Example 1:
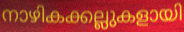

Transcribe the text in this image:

നാഴികക്കല്ലുകളായി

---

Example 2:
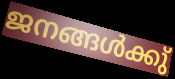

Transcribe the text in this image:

ജനങ്ങൾക്കു്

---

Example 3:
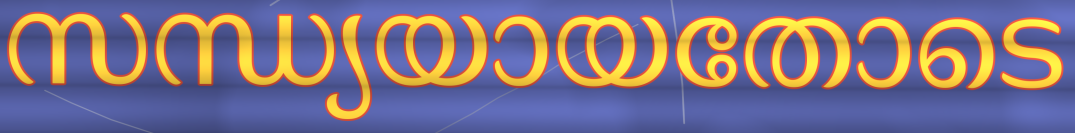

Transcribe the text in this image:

സന്ധ്യയായതോടെ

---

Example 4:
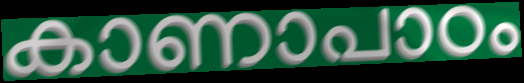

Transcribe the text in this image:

കാണാപാഠം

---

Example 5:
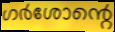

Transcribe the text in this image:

ഗർശോന്റെ